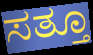
ಸತ್ತೂ